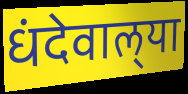
धंदेवाल्या